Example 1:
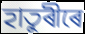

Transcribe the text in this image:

হাতুৰীৰে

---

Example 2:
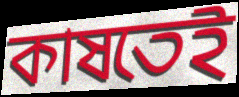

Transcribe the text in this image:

কাষতেই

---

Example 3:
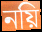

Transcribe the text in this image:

নয়ি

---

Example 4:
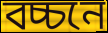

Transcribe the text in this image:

বচ্চনে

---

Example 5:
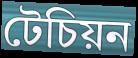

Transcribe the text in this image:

টেচিয়ন